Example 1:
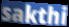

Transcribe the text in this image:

sakthi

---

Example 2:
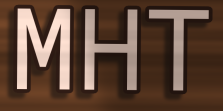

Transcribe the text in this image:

MHT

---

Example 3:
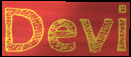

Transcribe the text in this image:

Devi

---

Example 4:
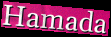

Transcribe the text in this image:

Hamada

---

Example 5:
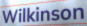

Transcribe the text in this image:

Wilkinson